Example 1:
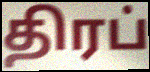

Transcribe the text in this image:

திரப்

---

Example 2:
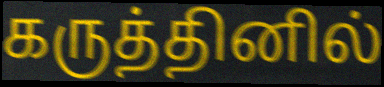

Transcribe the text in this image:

கருத்தினில்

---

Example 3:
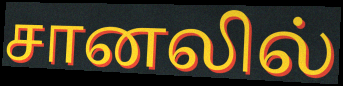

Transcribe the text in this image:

சானலில்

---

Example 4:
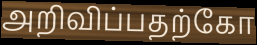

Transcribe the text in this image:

அறிவிப்பதற்கோ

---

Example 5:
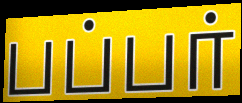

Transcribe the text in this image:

பப்பர்